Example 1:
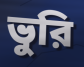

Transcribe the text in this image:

ভুরি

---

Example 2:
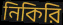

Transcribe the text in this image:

নিকিরি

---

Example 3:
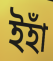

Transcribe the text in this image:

ইহাঁ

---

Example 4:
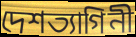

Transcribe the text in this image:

দেশত্যাগিনী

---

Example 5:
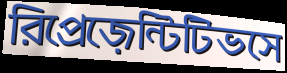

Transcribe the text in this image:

রিপ্রেজ়েন্টিটিভসে